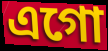
এগো